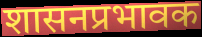
शासनप्रभावक